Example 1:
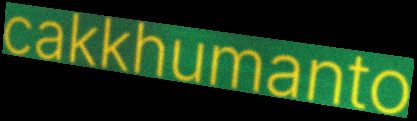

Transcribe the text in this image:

cakkhumanto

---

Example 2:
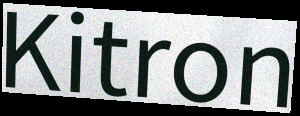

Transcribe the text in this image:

Kitron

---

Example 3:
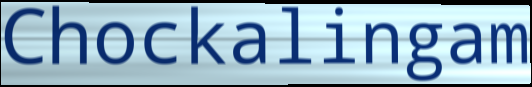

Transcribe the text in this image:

Chockalingam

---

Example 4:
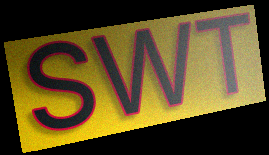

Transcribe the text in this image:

SWT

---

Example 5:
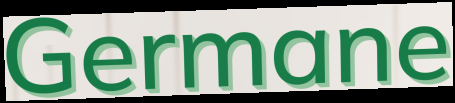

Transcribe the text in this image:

Germane